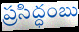
ప్రసిద్ధంబు